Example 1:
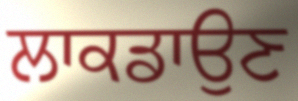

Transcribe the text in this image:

ਲਾਕਡਾਉਣ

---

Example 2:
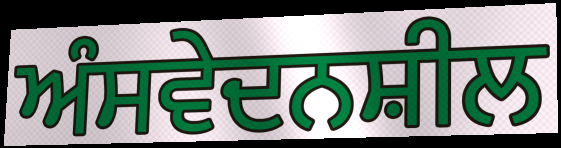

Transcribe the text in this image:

ਅੰਸਵੇਦਨਸ਼ੀਲ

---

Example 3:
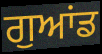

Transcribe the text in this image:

ਗੁਆਂਡ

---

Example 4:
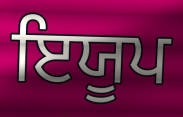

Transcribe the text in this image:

ਇਯੂਪ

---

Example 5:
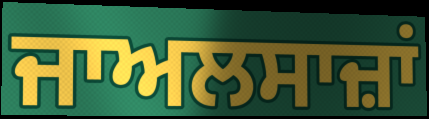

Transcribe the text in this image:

ਜਾਅਲਸਾਜ਼ਾਂ